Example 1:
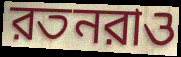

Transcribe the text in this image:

রতনরাও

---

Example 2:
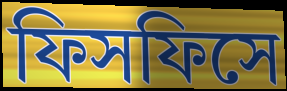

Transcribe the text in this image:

ফিসফিসে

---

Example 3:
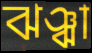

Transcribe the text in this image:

ঝঞ্ঝা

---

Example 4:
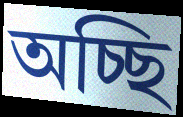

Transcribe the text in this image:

অচ্ছি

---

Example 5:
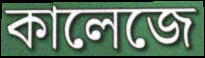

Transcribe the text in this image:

কালেজে